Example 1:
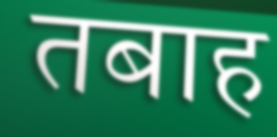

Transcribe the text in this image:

तबाह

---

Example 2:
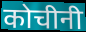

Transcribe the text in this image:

कोचीनी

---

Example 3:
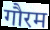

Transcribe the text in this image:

गौरम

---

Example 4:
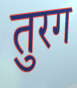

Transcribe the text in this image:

तुरग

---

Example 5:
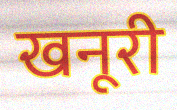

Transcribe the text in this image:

खनूरी